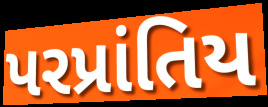
પરપ્રાંતિય